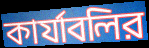
কার্যাবলির